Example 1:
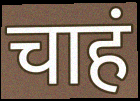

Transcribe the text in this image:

चाहं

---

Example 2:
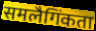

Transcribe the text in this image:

समलैगिंकता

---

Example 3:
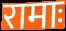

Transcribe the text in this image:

रामाः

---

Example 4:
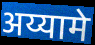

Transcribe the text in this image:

अय्यामे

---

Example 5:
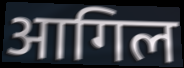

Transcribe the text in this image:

आगिल